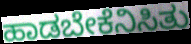
ಹಾಡಬೇಕೆನಿಸಿತು